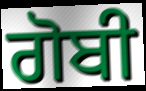
ਗੋਬੀ